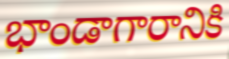
భాండాగారానికి